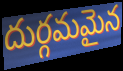
దుర్గమమైన